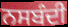
ਨਸਬੰਦੀ